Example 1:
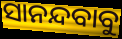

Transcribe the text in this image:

ସାନନ୍ଦବାବୁ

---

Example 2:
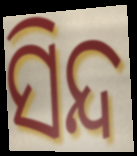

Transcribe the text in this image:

ସିନ୍ଦ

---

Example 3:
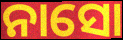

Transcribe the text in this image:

ନାସୋ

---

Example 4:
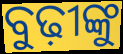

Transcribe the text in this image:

ବୁଢ଼ୀଙ୍କୁ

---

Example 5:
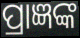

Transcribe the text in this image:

ପ୍ରାଜ୍ଞଙ୍କ